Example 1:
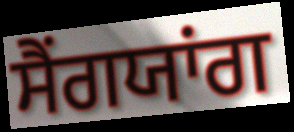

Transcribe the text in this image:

ਸੈਂਗਯਾਂਗ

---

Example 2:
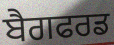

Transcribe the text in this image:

ਬੈਗਫਰਡ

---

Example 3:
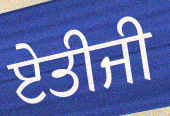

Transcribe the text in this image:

ਏਤੀਜੀ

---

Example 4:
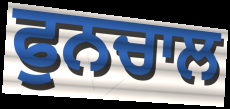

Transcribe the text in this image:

ਫੁਨਚਾਲ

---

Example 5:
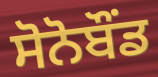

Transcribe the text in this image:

ਸੋਨੋਬੌਂਡ